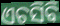
ଏଚସିବି